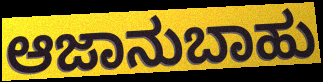
ಆಜಾನುಬಾಹು